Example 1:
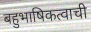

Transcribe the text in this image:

बहुभाषिकत्वाची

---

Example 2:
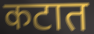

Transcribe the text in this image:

कटात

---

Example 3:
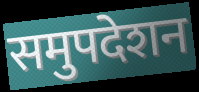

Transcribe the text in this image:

समुपदेशन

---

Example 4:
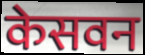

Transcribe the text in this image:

केसवन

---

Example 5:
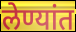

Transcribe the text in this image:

लेण्यांत